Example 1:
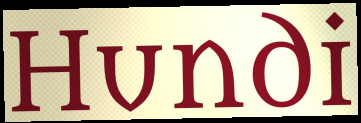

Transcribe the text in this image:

Hundi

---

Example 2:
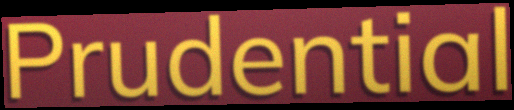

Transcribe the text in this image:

Prudential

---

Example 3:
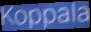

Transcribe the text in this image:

Koppala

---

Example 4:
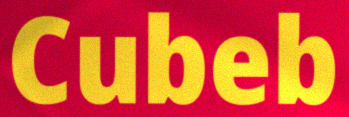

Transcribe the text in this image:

Cubeb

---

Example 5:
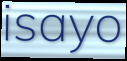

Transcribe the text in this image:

isayo